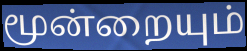
மூன்றையும்